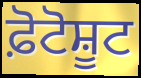
ਫ਼ੋਟੋਸ਼ੂਟ